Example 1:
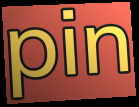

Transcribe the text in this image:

pin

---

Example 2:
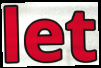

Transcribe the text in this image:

let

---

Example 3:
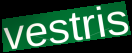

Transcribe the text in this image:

vestris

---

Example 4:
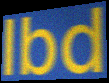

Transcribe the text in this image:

Ibd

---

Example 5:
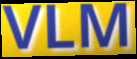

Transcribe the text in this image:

VLM